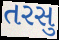
તરસુ